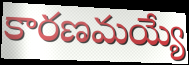
కారణమయ్యే